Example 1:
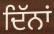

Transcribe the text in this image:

ਦਿੱਨਾਂ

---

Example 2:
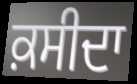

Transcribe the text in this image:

ਕ਼ਸੀਦਾ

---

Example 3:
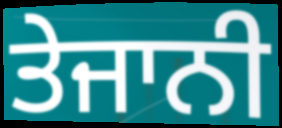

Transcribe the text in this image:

ਤੇਜਾਨੀ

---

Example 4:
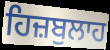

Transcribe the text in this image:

ਹਿਜ਼ਬੁਲਾਹ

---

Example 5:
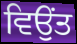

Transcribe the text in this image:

ਵਿਉਂਤ